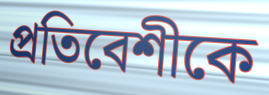
প্রতিবেশীকে